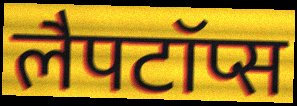
लैपटॉप्‍स